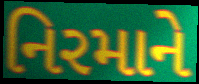
નિરમાને